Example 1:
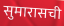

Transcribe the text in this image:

सुमारासची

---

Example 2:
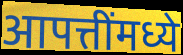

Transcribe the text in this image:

आपत्तींमध्ये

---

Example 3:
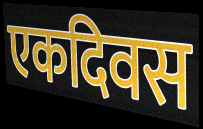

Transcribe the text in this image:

एकदिवस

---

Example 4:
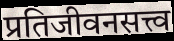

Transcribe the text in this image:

प्रतिजीवनसत्त्व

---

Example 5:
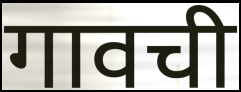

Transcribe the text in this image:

गावची